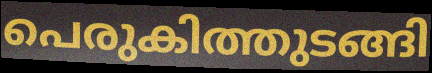
പെരുകിത്തുടങ്ങി